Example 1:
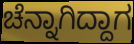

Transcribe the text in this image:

ಚೆನ್ನಾಗಿದ್ದಾಗ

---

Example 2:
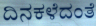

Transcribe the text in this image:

ದಿನಕಳೆದಂತೆ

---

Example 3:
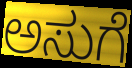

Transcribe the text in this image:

ಅಸುಗೆ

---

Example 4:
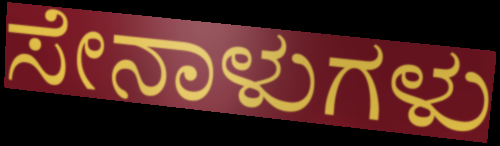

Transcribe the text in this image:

ಸೇನಾಳುಗಳು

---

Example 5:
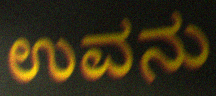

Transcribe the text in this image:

ಉವನು